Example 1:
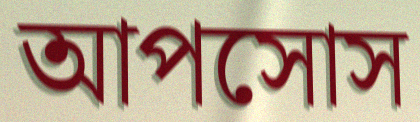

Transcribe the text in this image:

আপসোস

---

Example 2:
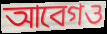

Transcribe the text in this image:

আবেগও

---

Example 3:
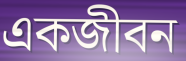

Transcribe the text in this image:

একজীবন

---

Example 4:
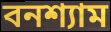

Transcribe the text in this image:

বনশ্যাম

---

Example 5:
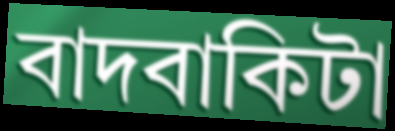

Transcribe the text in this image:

বাদবাকিটা